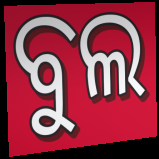
ବୁଲ